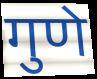
गुणे